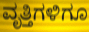
ವೃತ್ತಿಗಳಿಗೂ